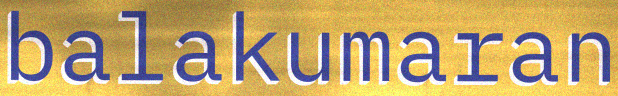
balakumaran